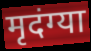
मृदंग्या